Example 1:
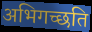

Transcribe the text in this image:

अभिगच्छति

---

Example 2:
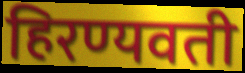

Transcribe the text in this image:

हिरण्यवती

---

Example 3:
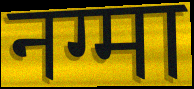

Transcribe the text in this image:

नग्मा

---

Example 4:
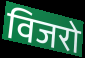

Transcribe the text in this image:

विजरो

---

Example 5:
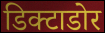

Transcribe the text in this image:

डिक्टाडोर